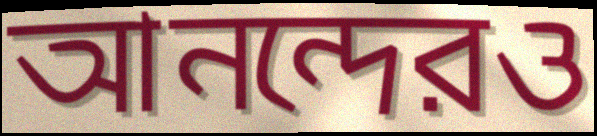
আনন্দেরও